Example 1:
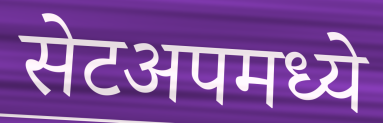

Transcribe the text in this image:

सेटअपमध्ये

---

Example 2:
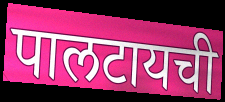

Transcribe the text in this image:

पालटायची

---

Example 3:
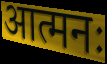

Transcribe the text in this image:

आत्मनः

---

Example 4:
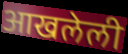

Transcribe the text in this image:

आखलेली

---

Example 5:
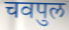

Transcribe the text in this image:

चवपुल